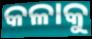
କଳାକୁ